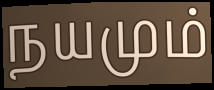
நயமும்